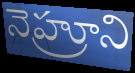
నెహ్రూని